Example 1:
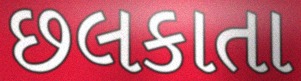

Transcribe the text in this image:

છલકાતા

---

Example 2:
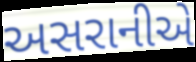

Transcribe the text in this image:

અસરાનીએ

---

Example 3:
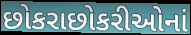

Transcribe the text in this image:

છોકરાછોકરીઓનાં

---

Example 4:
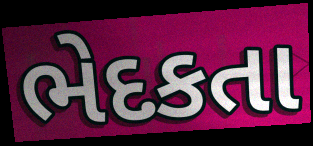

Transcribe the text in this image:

ભેદકતા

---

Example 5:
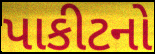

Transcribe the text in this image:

પાકીટનો